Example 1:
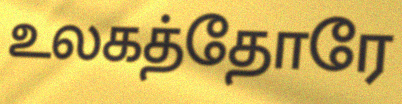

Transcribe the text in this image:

உலகத்தோரே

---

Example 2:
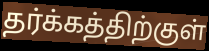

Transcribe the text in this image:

தர்க்கத்திற்குள்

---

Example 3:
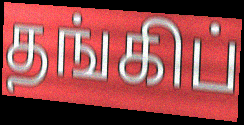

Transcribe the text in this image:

தங்கிப்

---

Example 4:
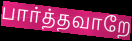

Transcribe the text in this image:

பார்த்தவாறே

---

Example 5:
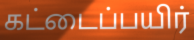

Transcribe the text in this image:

கட்டைப்பயிர்